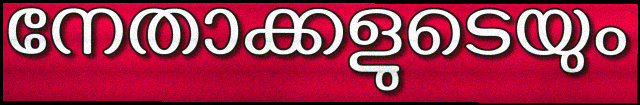
നേതാക്കളുടെയും